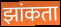
झांकता